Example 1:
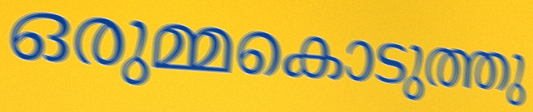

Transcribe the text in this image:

ഒരുമ്മകൊടുത്തു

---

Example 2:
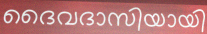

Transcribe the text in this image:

ദൈവദാസിയായി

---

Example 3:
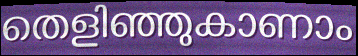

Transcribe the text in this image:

തെളിഞ്ഞുകാണാം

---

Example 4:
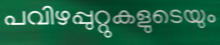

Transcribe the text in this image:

പവിഴപ്പുറ്റുകളുടെയും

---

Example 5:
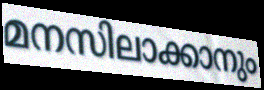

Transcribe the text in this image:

മനസിലാക്കാനും